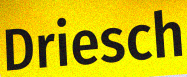
Driesch